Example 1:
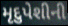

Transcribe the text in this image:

મૃદુપેશીની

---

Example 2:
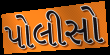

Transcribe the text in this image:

પોલીસો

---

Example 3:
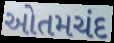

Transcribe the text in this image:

ઓતમચંદ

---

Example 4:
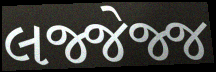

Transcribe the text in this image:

લજ્જેજ્જ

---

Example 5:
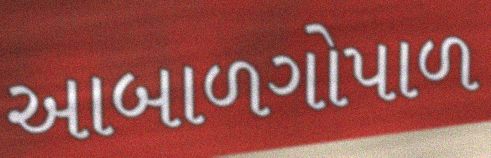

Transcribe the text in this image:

આબાળગોપાળ